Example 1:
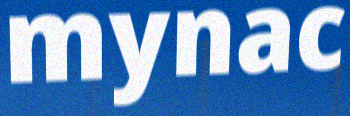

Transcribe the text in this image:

mynac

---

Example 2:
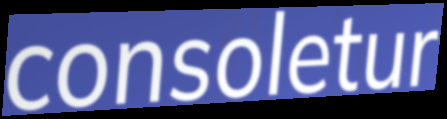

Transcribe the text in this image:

consoletur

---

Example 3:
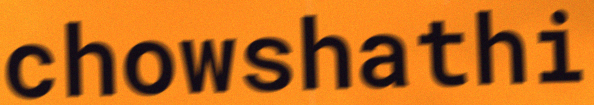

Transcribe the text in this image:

chowshathi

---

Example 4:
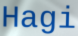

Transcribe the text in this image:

Hagi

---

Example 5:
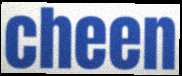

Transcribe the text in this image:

cheen